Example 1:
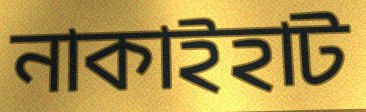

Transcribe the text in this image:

নাকাইহাট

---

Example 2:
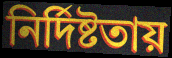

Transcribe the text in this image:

নির্দিষ্টতায়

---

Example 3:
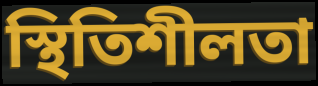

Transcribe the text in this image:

স্থিতিশীলতা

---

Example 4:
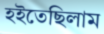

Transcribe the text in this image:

হইতেছিলাম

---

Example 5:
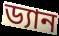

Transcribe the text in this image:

ড্যান